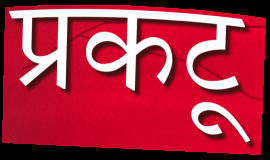
प्रकटू